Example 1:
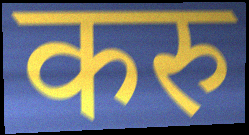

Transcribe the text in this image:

करु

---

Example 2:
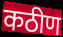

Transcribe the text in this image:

कठीण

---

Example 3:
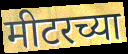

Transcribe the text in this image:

मीटरच्या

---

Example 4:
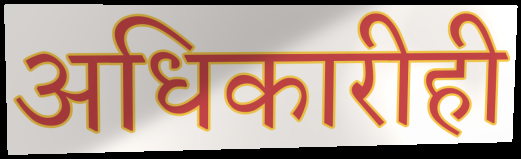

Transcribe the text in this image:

अधिकारीही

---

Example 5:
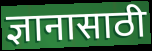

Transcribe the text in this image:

ज्ञानासाठी